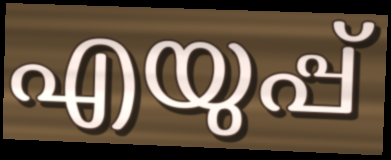
എയുപ്പ്